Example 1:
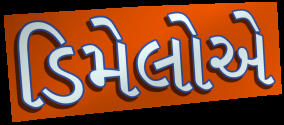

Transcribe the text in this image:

ડિમેલોએ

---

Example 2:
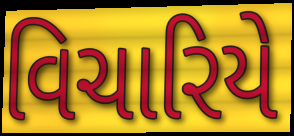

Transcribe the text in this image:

વિચારિયે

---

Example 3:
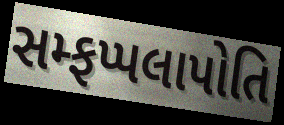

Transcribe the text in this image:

સમ્ફપ્પલાપોતિ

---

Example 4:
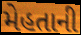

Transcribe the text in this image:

મેહતાની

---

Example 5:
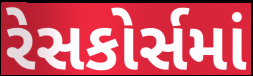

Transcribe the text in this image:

રેસકોર્સમાં